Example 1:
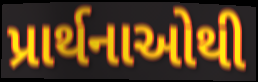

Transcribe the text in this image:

પ્રાર્થનાઓથી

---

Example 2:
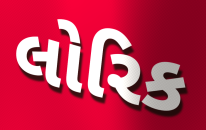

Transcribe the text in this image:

લોરિક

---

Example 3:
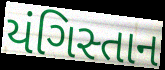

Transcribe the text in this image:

યંગિસ્તાન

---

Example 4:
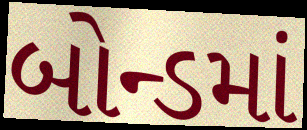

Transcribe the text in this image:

બોન્ડમાં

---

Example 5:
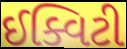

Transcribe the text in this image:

ઈક્વિટી